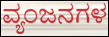
ವ್ಯಂಜನಗಳ